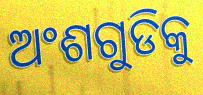
ଅଂଶଗୁଡିକୁ